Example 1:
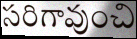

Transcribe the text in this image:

సరిగావుంచి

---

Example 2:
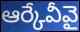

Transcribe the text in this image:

ఆర్కేవీవై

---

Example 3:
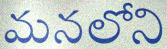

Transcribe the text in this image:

మనలోని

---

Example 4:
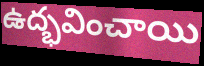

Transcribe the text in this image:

ఉద్భవించాయి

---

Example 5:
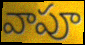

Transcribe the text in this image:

వాపూ